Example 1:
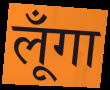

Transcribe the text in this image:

लूँगा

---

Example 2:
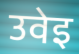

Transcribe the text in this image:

उवेइ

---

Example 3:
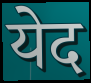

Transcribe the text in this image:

येद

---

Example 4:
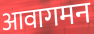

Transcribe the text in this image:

आवागमन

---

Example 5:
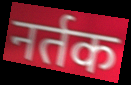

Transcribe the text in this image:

नर्तक